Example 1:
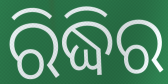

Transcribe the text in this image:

ରିଦ୍ଧିର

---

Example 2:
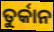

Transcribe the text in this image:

ତୁର୍କାନ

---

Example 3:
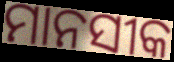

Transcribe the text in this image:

ମାନସୀକ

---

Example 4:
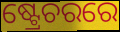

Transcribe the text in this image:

ଷ୍ଟ୍ରେଚରରେ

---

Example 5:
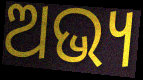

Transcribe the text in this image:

ଅଭ୍ୟ